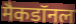
मैकडॉनल